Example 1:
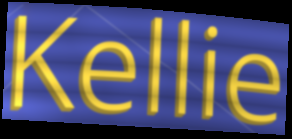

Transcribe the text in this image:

Kellie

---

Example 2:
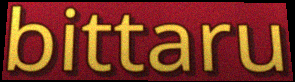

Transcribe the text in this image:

bittaru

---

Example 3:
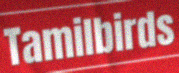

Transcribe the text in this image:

Tamilbirds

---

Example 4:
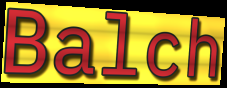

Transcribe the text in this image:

Balch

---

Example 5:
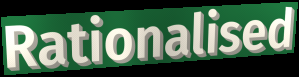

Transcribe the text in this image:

Rationalised